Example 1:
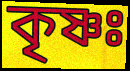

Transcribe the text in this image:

কৃষ্ণঃ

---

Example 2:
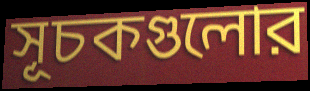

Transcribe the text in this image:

সূচকগুলোর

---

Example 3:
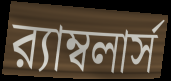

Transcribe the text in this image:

র‍্যাম্বলার্স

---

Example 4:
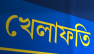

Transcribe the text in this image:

খেলাফতি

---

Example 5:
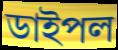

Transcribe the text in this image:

ডাইপল